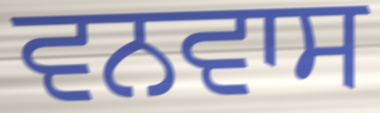
ਵਨਵਾਸ